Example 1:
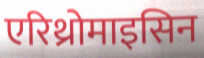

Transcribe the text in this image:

एरिथ्रोमाइसिन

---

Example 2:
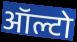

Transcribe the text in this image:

ऑल्टो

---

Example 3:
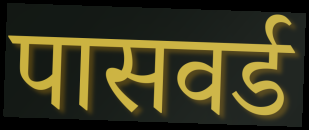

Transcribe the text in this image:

पासवर्ड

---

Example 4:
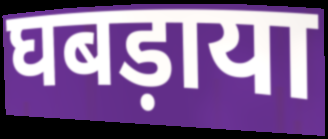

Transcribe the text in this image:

घबड़ाया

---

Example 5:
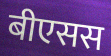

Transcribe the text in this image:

बीएसस